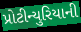
પ્રોટીન્યુરિયાની